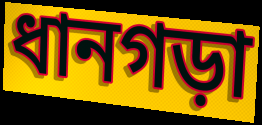
ধানগড়া